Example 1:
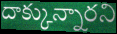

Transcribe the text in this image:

దాక్కున్నారని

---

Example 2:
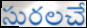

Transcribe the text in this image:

సురలచే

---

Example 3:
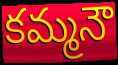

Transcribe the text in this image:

కమ్మనౌ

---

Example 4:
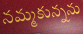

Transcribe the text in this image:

నమ్మకున్నను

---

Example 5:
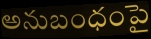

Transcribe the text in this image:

అనుబంధంపై